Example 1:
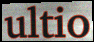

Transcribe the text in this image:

ultio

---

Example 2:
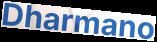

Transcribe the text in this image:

Dharmano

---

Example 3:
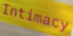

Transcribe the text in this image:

Intimacy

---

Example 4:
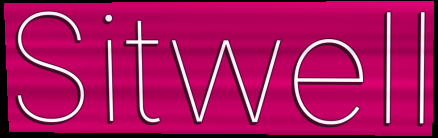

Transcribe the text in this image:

Sitwell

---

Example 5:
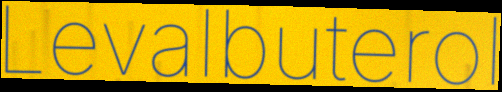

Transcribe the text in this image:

Levalbuterol